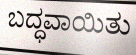
ಬದ್ಧವಾಯಿತು